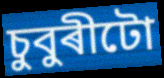
চুবুৰীটো